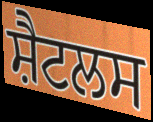
ਸ਼ੈਟਲਸ